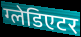
ग्लेडिएटर